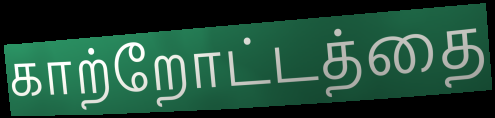
காற்றோட்டத்தை